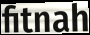
fitnah